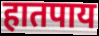
हातपाय